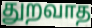
துறவாத